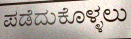
ಪಡೆದುಕೊಳ್ಳಲು